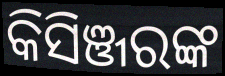
କିସିଞ୍ଜରଙ୍କ